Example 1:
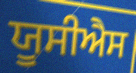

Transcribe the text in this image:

ਯੂਸੀਐਸ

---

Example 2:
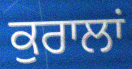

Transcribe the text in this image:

ਕੁਰਾਲਾਂ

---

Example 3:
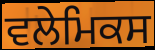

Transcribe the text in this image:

ਵਲੇਮਿਕਸ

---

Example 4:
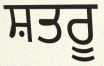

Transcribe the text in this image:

ਸ਼ਤਰੂ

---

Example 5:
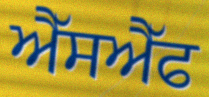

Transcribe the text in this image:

ਐੱਸਐੱਫ